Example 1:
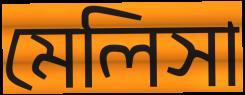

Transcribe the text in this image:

মেলিসা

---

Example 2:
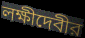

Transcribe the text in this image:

লক্ষীদেবীর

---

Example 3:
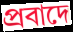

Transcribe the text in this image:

প্রবাদে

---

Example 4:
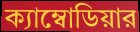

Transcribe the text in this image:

ক্যাম্বোডিয়ার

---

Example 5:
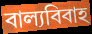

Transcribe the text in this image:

বাল্যবিবাহ